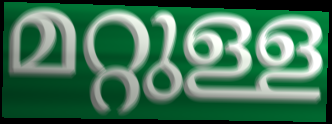
മറ്റുള്ള